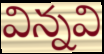
విన్నవి